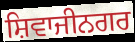
ਸ਼ਿਵਾਜੀਨਗਰ